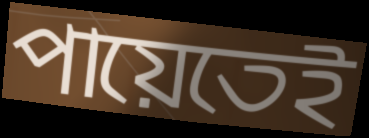
পায়েতেই